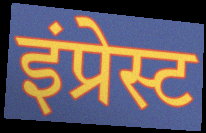
इंप्रेस्ट